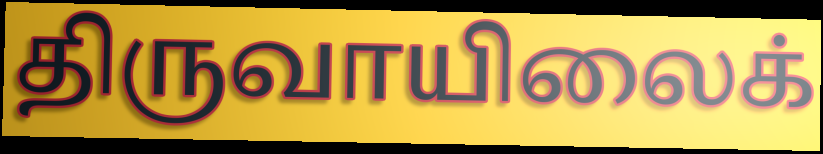
திருவாயிலைக்